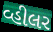
વ્હીલર